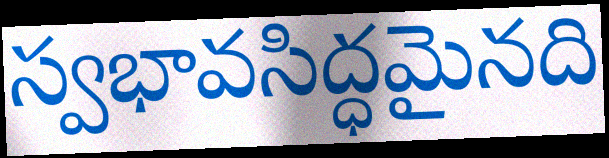
స్వభావసిద్ధమైనది